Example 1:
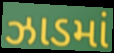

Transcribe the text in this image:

ઝાડમાં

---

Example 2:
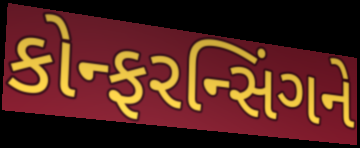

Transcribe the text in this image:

કોન્ફરન્સિંગને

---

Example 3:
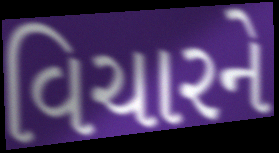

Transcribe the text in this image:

વિચારને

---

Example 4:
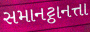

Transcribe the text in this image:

સમાનટ્ઠાનત્તા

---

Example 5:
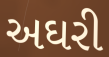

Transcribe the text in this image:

અઘરી